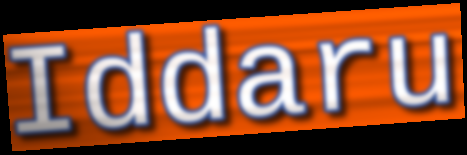
Iddaru